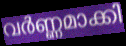
വർണ്ണമാക്കി